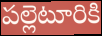
పల్లెటూరికి